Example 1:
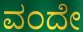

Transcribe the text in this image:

ವಂದೇ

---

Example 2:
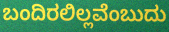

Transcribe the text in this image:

ಬಂದಿರಲಿಲ್ಲವೆಂಬುದು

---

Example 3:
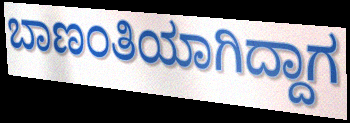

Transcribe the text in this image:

ಬಾಣಂತಿಯಾಗಿದ್ದಾಗ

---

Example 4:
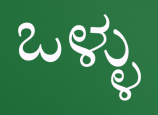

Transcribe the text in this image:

ಒಳ್ಳು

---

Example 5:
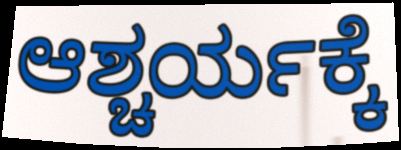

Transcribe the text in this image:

ಆಶ್ಚರ್ಯಕ್ಕೆ